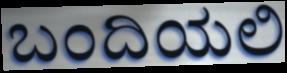
ಬಂದಿಯಲಿ